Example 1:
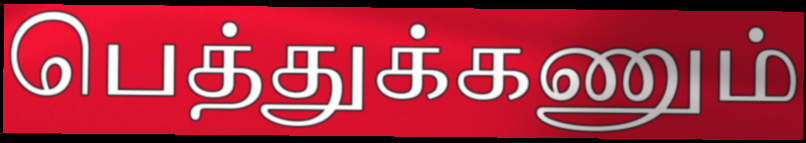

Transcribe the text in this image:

பெத்துக்கணும்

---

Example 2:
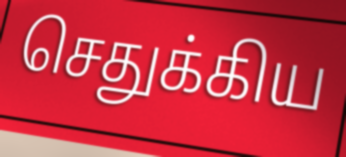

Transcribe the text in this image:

செதுக்கிய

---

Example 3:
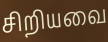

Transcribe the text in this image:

சிறியவை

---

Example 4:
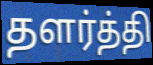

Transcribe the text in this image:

தளர்த்தி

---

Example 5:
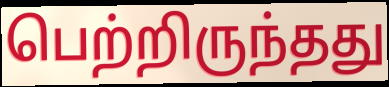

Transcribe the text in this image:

பெற்றிருந்தது